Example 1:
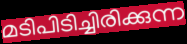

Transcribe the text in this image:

മടിപിടിച്ചിരിക്കുന്ന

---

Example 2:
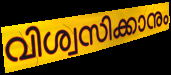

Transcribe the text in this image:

വിശ്വസിക്കാനും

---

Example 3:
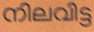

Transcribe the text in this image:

നിലവിട്ട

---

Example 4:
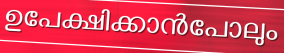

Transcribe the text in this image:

ഉപേക്ഷിക്കാൻപോലും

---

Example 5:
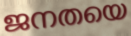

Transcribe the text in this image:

ജനതയെ